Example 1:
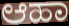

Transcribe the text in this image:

ಆಹಾ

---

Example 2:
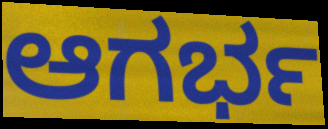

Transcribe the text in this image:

ಆಗರ್ಭ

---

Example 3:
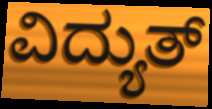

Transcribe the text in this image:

ವಿದ್ಯುತ್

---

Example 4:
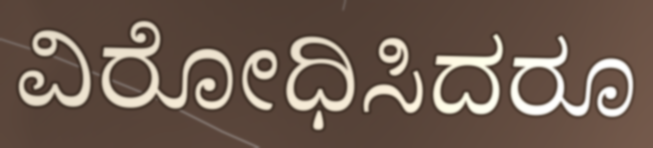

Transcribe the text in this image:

ವಿರೋಧಿಸಿದರೂ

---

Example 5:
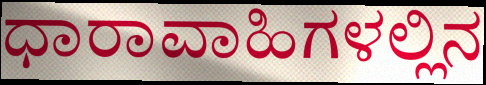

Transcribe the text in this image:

ಧಾರಾವಾಹಿಗಳಲ್ಲಿನ